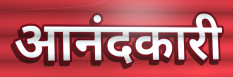
आनंदकारी